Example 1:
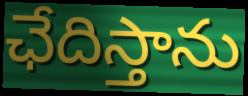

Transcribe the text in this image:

ఛేదిస్తాను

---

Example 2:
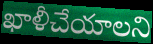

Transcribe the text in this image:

ఖాళీచేయాలని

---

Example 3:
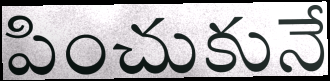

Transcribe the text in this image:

పించుకునే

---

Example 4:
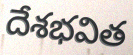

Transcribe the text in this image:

దేశభవిత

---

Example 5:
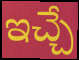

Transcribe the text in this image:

ఇచ్చే